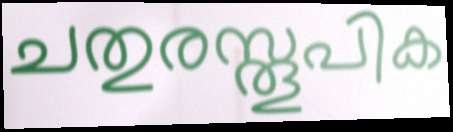
ചതുരസ്തൂപിക